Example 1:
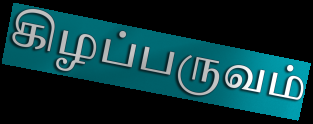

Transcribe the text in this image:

கிழப்பருவம்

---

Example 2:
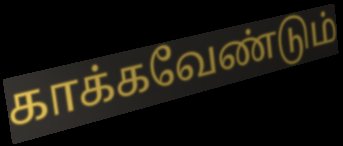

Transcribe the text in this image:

காக்கவேண்டும்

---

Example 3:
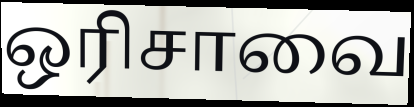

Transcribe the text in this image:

ஒரிசாவை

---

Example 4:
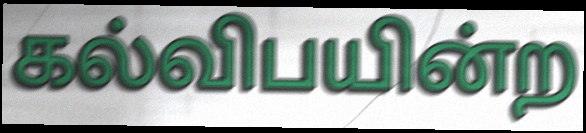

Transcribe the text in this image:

கல்விபயின்ற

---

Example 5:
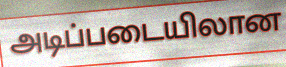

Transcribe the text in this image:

அடிப்படையிலான